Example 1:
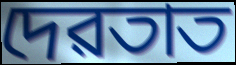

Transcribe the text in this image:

দেৱতাত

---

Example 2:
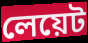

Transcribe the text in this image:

লেয়েট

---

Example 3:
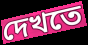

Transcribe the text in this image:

দেখতে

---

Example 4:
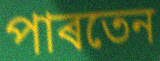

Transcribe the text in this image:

পাৰতেন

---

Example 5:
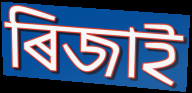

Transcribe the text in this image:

ৰিজাই